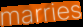
marries